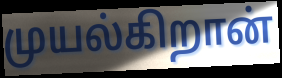
முயல்கிறான்